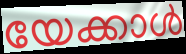
യേക്കാൾ